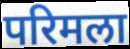
परिमला